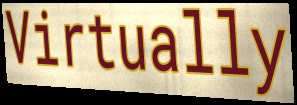
Virtually